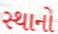
સ્થાનો